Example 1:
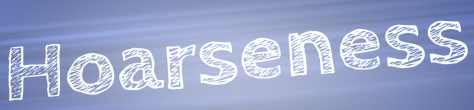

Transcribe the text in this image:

Hoarseness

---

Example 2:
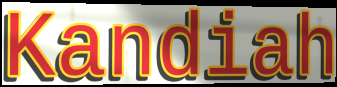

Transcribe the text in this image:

Kandiah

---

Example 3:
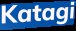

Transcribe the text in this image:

Katagi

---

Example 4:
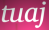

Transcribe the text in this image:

tuaj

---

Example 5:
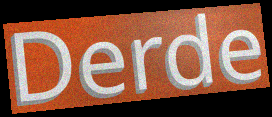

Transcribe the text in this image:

Derde